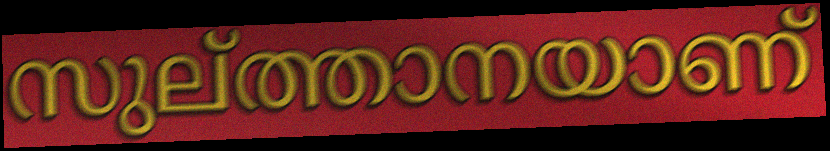
സുല്ത്താനയാണ്